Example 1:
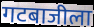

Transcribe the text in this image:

गटबाजीला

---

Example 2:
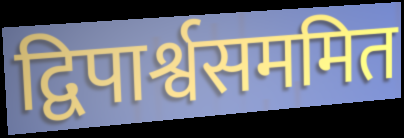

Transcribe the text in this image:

द्विपार्श्वसममित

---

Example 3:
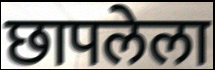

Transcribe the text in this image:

छापलेला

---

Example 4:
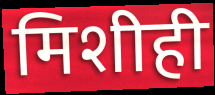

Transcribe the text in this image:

मिशीही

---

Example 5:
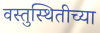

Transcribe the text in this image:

वस्तुस्थितीच्या